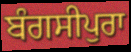
ਬੰਗਸੀਪੁਰਾ